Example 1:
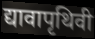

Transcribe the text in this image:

द्यावापृथिवी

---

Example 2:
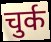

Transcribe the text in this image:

चुर्क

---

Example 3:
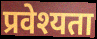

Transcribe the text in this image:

प्रवेश्यता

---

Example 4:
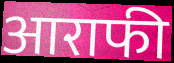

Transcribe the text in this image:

आराफी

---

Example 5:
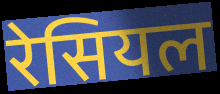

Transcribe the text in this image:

रेसियल